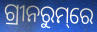
ଗ୍ରୀନରୁମ୍‌ରେ